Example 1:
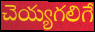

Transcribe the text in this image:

చెయ్యగలిగే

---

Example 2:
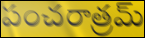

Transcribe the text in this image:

పంచరాత్రమ్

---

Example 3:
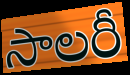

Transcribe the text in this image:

సాలరీ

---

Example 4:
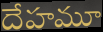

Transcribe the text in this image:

దేహమూ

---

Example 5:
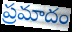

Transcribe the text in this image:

ప్రమాదం